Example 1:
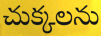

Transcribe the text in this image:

చుక్కలను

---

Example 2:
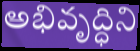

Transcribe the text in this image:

అభివృద్ధిని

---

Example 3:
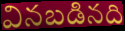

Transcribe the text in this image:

వినబడినది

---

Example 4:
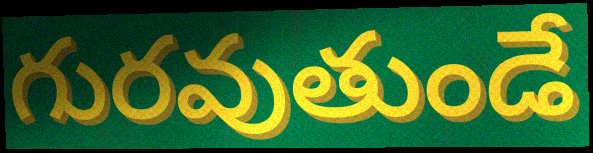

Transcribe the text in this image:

గురవుతుండే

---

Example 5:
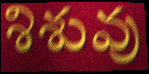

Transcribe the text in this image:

శిశువు